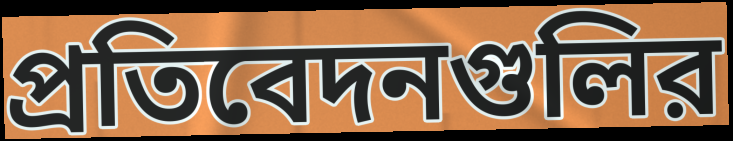
প্রতিবেদনগুলির